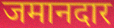
जमानदार